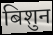
बिशुन